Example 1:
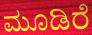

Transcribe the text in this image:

ಮೂಡಿರೆ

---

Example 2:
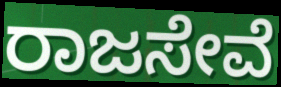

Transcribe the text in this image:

ರಾಜಸೇವೆ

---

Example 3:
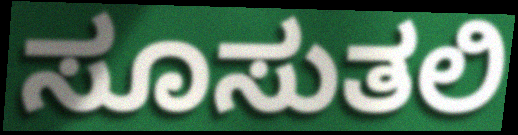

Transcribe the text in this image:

ಸೂಸುತಲಿ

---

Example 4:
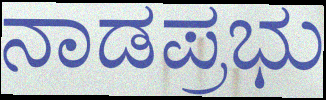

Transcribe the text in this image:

ನಾಡಪ್ರಭು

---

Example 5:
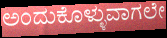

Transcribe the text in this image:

ಅಂದುಕೊಳ್ಳುವಾಗಲೇ